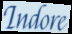
Indore